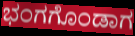
ಭಂಗಗೊಂಡಾಗ